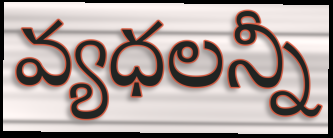
వ్యధలన్నీ